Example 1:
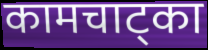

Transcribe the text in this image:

कामचाट्का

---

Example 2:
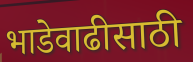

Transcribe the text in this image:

भाडेवाढीसाठी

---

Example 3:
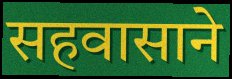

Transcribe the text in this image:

सहवासाने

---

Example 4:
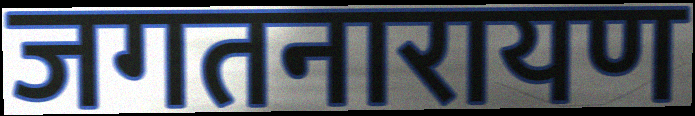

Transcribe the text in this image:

जगतनारायण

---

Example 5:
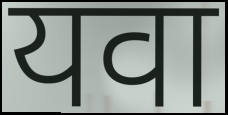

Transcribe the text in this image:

यवा